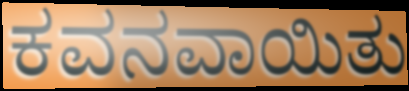
ಕವನವಾಯಿತು